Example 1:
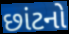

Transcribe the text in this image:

છાંટનો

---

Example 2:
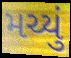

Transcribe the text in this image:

મચ્યું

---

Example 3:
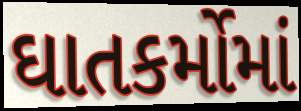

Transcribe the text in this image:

ઘાતકર્મોમાં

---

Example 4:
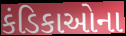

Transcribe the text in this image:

કંડિકાઓના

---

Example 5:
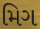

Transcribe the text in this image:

મિગ